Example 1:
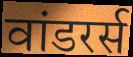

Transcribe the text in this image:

वांडरर्स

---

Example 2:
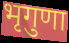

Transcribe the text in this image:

भृगुणा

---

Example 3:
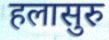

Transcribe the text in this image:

हलासुरु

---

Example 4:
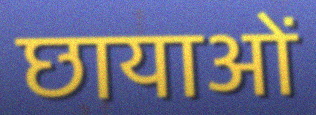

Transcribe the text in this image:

छायाओं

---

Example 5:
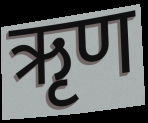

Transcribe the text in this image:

ऋृण